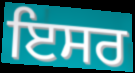
ਇਸਰ